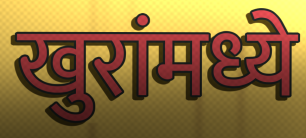
खुरांमध्ये